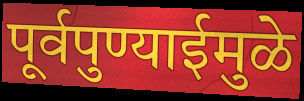
पूर्वपुण्याईमुळे